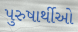
પુરુષાર્થીઓ